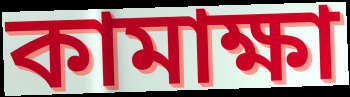
কামাক্ষা